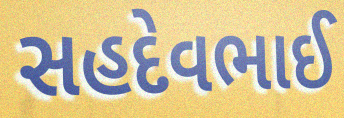
સહદેવભાઈ